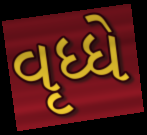
વૃધ્ધે